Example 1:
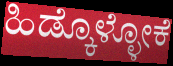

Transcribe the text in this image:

ಹಿಡ್ಕೊಳ್ಳೋಕೆ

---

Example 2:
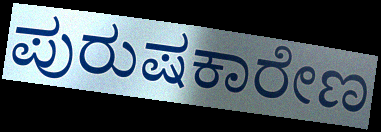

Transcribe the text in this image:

ಪುರುಷಕಾರೇಣ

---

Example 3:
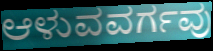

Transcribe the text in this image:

ಆಳುವವರ್ಗವು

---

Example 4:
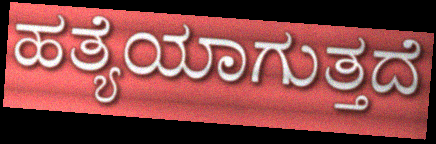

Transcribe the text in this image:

ಹತ್ಯೆಯಾಗುತ್ತದೆ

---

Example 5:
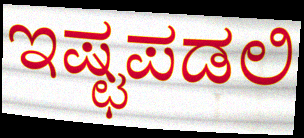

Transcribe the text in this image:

ಇಷ್ಟಪಡಲಿ